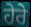
ਹੇਰੇ